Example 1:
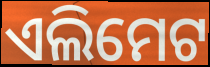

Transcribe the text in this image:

ଏଲିମେଟ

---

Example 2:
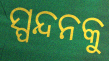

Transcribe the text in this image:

ସ୍ପନ୍ଦନକୁ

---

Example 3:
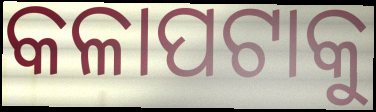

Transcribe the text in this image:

କଳାପଟାକୁ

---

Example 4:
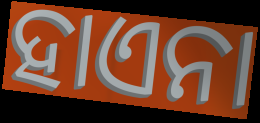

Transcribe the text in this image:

ହାଏନା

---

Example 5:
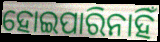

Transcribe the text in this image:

ହୋଇପାରିନାହିଁ